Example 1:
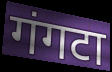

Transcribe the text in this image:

गंगटा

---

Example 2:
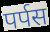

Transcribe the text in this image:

पर्पस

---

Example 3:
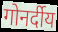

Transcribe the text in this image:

गोनर्दीय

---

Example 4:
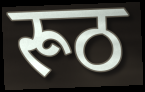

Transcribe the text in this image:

रूठ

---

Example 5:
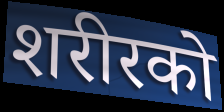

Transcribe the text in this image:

शरीरको